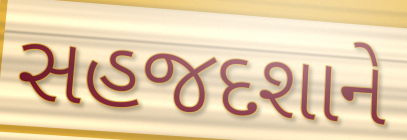
સહજદશાને